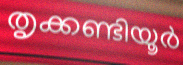
തൃക്കണ്ടിയൂർ